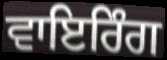
ਵਾਇਰਿੰਗ